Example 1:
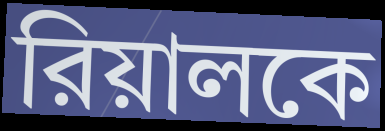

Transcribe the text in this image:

রিয়ালকে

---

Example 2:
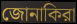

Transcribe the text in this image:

জোনাকিরা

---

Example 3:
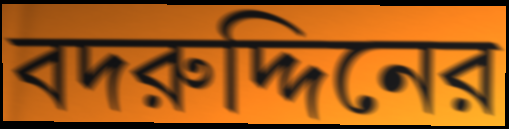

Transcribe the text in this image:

বদরুদ্দিনের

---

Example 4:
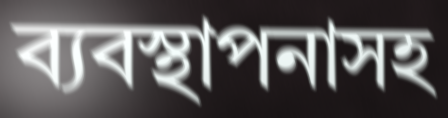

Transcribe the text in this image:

ব্যবস্থাপনাসহ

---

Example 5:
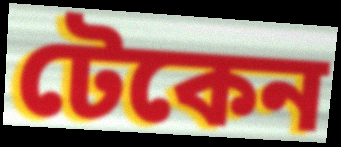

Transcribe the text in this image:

টেকেন